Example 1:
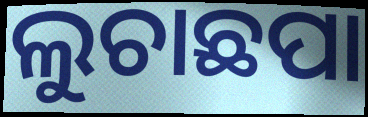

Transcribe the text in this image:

ଲୁଚାଛପା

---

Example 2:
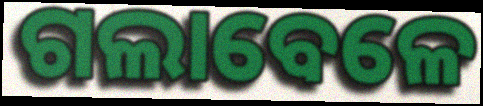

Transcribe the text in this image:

ଗଲାବେଳେ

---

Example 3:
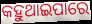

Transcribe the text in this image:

କହୁଥାଇପାରେ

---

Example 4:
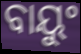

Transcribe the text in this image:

ବାୟୁଂ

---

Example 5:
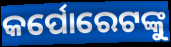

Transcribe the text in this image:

କର୍ପୋରେଟଙ୍କୁ